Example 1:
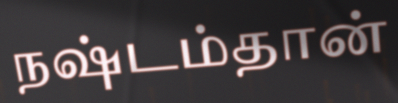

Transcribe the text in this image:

நஷ்டம்தான்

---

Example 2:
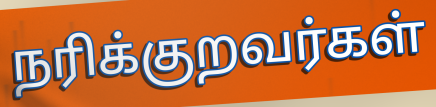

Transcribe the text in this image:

நரிக்குறவர்கள்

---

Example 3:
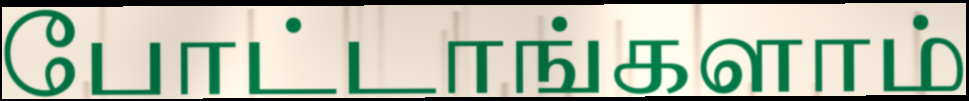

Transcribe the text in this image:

போட்டாங்களாம்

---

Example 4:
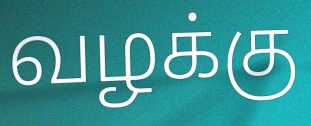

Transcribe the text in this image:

வழக்கு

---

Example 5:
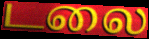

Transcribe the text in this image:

டலை